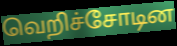
வெறிச்சோடின